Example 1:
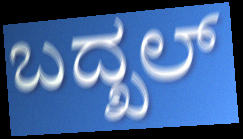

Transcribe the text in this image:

ಬದ್ಖಲ್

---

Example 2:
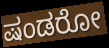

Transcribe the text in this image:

ಷಂಡರೋ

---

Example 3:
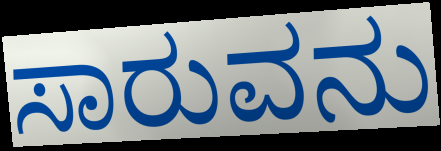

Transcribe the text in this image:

ಸಾರುವನು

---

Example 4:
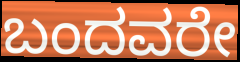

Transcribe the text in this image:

ಬಂದವರೇ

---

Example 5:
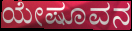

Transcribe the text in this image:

ಯೇಷೂವನ